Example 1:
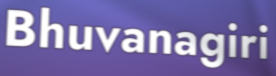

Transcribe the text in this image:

Bhuvanagiri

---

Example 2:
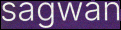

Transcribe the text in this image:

sagwan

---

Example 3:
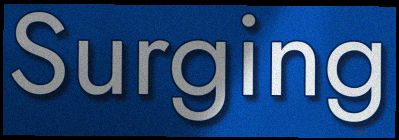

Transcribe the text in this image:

Surging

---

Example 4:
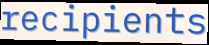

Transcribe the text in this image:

recipients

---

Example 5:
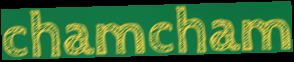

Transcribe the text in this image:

chamcham